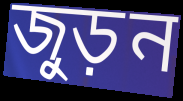
জুড়ন